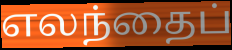
எலந்தைப்